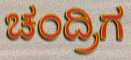
ಚಂದ್ರಿಗ